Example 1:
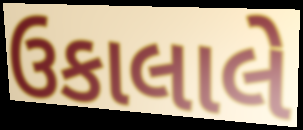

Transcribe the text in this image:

ઉકાલાલે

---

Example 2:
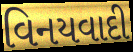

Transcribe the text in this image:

વિનયવાદી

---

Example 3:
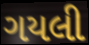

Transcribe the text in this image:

ગયલી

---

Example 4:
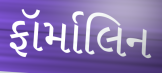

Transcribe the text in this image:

ફૉર્માલિન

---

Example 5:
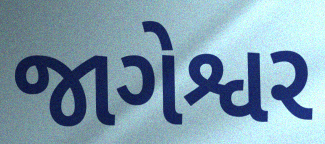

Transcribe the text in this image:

જાગેશ્વર